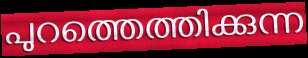
പുറത്തെത്തിക്കുന്ന